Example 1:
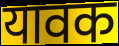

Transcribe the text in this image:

यावक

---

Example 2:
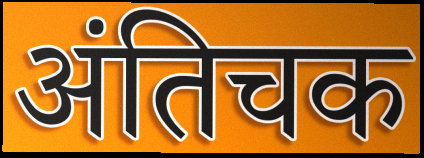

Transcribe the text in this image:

अंतिचक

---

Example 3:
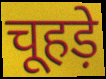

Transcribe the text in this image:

चूहड़े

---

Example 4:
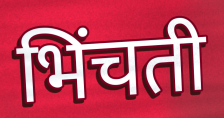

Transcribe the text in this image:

भिंचती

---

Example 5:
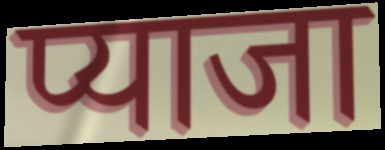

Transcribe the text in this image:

प्याजा